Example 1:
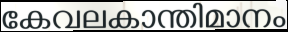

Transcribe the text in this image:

കേവലകാന്തിമാനം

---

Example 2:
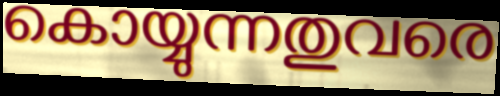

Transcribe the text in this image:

കൊയ്യുന്നതുവരെ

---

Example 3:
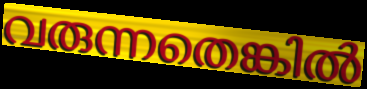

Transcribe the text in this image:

വരുന്നതെങ്കിൽ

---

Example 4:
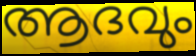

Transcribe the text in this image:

ആദവും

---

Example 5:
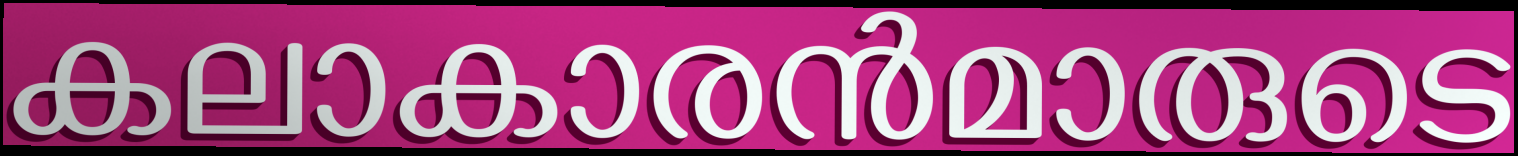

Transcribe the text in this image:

കലാകാരൻമാരുടെ